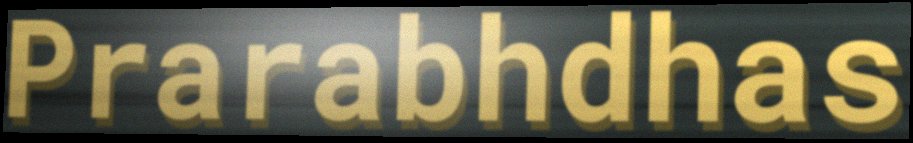
Prarabhdhas